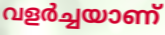
വളർച്ചയാണ്